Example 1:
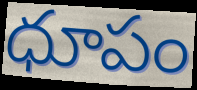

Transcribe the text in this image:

ధూపం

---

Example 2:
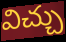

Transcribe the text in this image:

విచ్చు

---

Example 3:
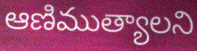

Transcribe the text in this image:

ఆణిముత్యాలని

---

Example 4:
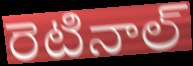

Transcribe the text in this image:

రెటినాల్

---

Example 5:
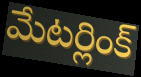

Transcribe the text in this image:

మేటర్లింక్